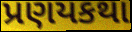
પ્રણયકથા